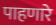
पाहणारे